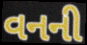
વનની